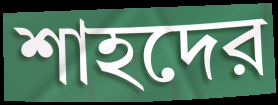
শাহদের